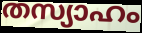
തസ്യാഹം